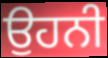
ਉਹਨੀ